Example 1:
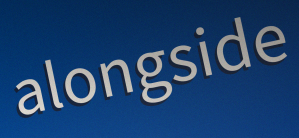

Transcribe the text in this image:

alongside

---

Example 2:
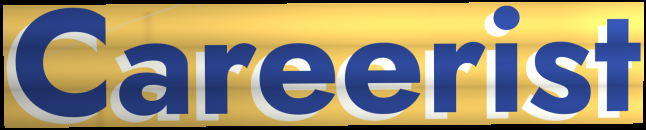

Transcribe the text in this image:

Careerist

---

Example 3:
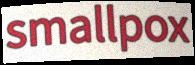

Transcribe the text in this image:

smallpox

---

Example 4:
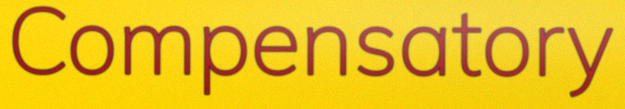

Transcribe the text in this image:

Compensatory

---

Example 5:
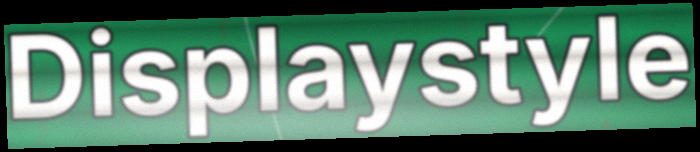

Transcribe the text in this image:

Displaystyle